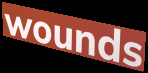
wounds